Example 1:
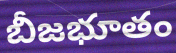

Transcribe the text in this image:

బీజభూతం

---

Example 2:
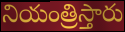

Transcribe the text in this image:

నియంత్రిస్తారు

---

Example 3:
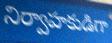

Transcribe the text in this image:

నిర్వాహకుడిగా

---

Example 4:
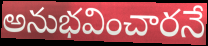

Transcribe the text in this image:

అనుభవించారనే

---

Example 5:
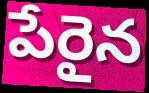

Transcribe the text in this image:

పేరైన